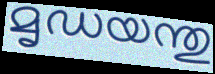
മൃഡയന്തു